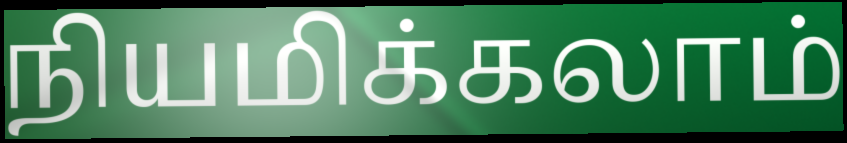
நியமிக்கலாம்